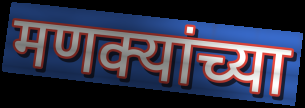
मणक्यांच्या